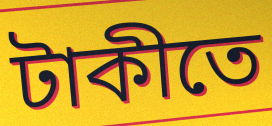
টাকীতে